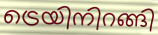
ട്രെയിനിറങ്ങി